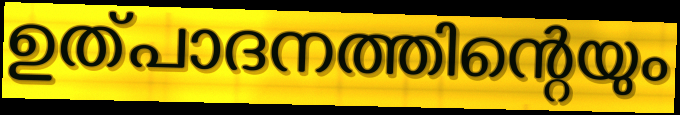
ഉത്പാദനത്തിന്റെയും